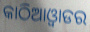
କାଠିଆଓ୍ୱାଡର